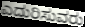
ಎದುರಿಸುವರು